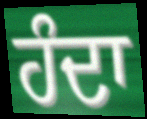
ਹੰਦਾ